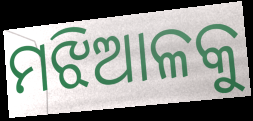
ମଝିଆଳକୁ